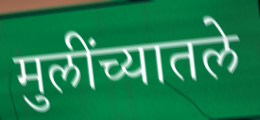
मुलींच्यातले